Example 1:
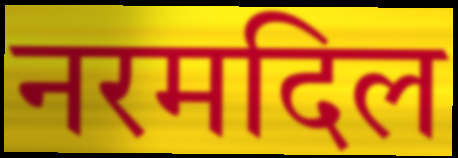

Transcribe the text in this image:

नरमदिल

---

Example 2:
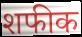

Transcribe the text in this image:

शफीक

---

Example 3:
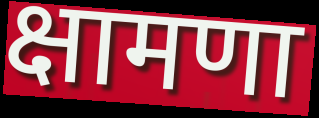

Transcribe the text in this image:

क्षामणा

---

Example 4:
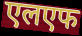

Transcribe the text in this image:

एलएफ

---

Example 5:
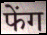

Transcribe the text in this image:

फेंग